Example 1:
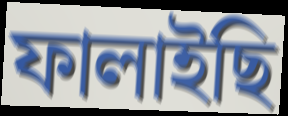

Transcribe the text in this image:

ফালাইছি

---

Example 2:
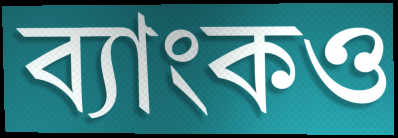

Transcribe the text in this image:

ব্যাংকও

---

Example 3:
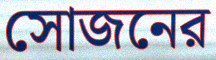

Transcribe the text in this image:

সোজনের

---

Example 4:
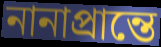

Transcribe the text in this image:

নানাপ্রান্তে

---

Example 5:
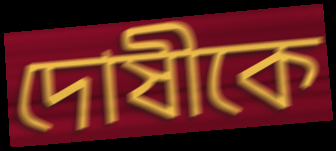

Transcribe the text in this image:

দোষীকে